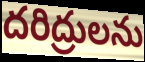
దరిద్రులను